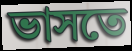
ভাসতে